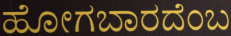
ಹೋಗಬಾರದೆಂಬ